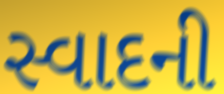
સ્વાદની